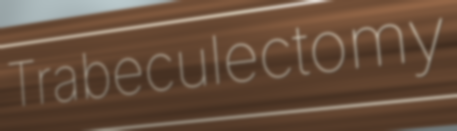
Trabeculectomy